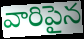
వారిపైన